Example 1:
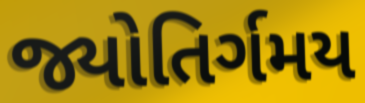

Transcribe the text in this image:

જ્યોતિર્ગમય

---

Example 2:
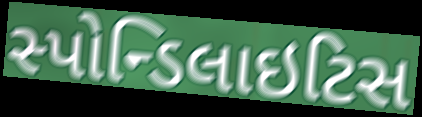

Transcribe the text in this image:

સ્પોન્ડિલાઇટિસ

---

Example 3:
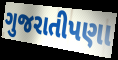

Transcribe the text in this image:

ગુજરાતીપણા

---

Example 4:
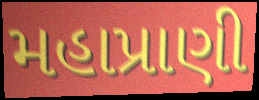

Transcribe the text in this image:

મહાપ્રાણી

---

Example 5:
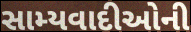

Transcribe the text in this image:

સામ્યવાદીઓની